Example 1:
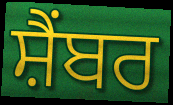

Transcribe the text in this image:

ਸ਼ੈਂਬਰ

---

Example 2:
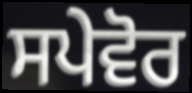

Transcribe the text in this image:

ਸਪੇਵੋਰ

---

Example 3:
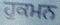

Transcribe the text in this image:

ਹੁਕਮਨ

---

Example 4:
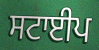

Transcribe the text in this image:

ਸਟਾਈਪ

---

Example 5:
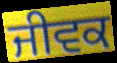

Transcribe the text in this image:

ਜੀਵਕ